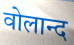
वोलान्द